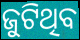
ଜୁଟିଥିବ